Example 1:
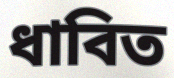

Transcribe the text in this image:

ধাবিত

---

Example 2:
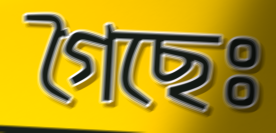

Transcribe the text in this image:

গৈছেঃ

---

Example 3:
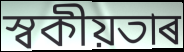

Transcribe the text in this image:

স্বকীয়তাৰ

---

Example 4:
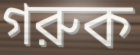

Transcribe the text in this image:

গৰুক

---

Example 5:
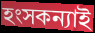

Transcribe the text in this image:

হংসকন্যাই